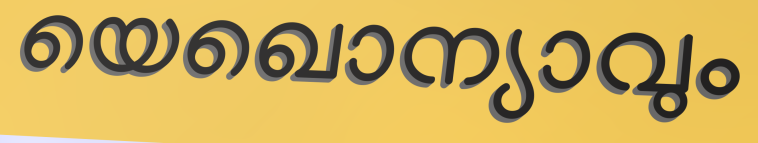
യെഖൊന്യാവും